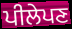
ਪੀਲੇਪਣ